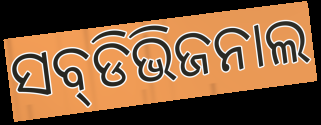
ସବ୍‌ଡିଭିଜନାଲ